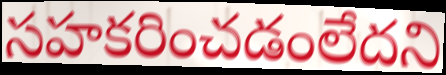
సహకరించడంలేదని